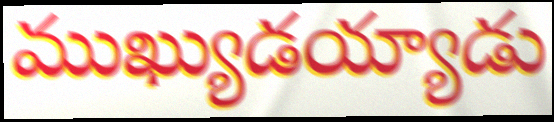
ముఖ్యుడయ్యాడు